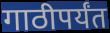
गाठीपर्यंत